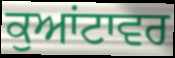
ਕੁਆਂਟਾਵਰ